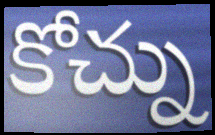
కోచ్ను